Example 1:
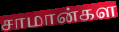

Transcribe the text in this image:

சாமான்கள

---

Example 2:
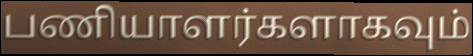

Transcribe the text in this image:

பணியாளர்களாகவும்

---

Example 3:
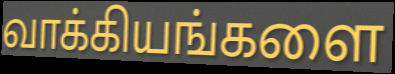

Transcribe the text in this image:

வாக்கியங்களை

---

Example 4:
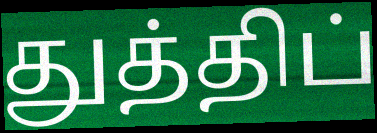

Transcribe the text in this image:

துத்திப்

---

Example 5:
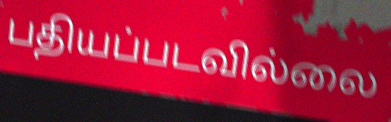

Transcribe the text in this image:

பதியப்படவில்லை